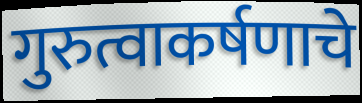
गुरुत्वाकर्षणाचे